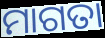
ମାଗତା